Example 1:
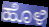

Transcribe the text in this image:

ಹೊಳಿ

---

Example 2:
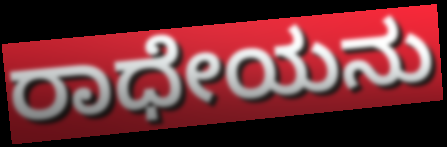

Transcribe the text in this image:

ರಾಧೇಯನು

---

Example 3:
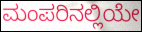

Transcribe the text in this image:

ಮಂಪರಿನಲ್ಲಿಯೇ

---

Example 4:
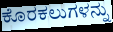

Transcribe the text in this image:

ಕೊರಕಲುಗಳನ್ನು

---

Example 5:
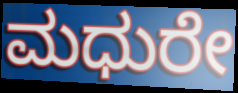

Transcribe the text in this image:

ಮಧುರೇ